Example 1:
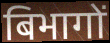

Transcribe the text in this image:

बिभागों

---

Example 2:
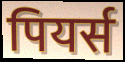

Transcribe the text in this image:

पियर्स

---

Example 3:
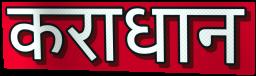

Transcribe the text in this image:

कराधान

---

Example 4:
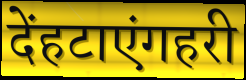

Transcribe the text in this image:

देंहटाएंगहरी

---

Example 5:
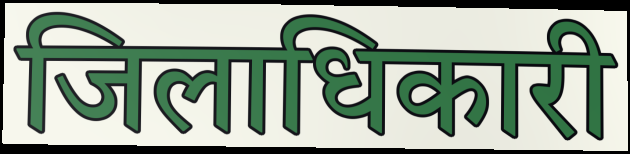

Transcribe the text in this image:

जिलाधिकारी